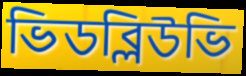
ভিডব্লিউভি